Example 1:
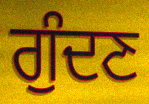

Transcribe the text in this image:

ਗੁੰਦਣ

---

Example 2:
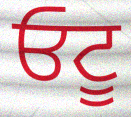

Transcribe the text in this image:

ਓਟੂ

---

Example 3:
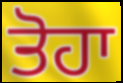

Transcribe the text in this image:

ਤੋਹਾ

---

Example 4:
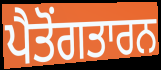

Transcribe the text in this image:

ਪੈਤੋਂਗਤਾਰਨ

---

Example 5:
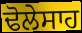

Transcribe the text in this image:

ਢੋਲੇਸਾਹ